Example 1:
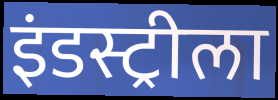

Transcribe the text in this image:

इंडस्ट्रीला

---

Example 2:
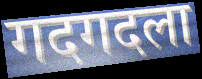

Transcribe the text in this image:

गदगदला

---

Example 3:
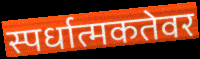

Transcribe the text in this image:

स्पर्धात्मकतेवर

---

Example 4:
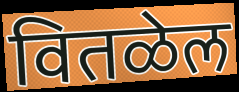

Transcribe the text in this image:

वितळेल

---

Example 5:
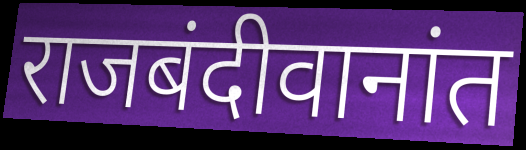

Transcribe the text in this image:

राजबंदीवानांत